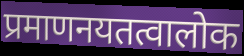
प्रमाणनयतत्वालोक